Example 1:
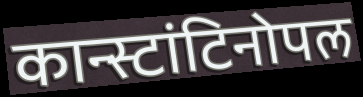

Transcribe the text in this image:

कान्स्टांटिनोपल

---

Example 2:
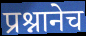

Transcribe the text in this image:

प्रश्नानेच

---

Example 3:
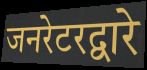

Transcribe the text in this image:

जनरेटरद्वारे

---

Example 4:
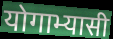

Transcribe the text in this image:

योगाभ्यासी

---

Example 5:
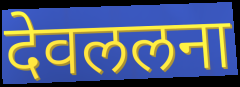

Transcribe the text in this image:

देवललना